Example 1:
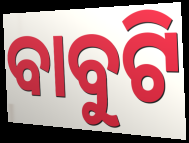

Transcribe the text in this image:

ବାବୁଟି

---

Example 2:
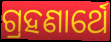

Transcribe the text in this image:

ଗ୍ରହଣାର୍ଥେ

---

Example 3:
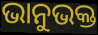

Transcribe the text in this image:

ଭାନୁଭକ୍ତ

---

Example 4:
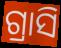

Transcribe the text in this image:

ଗ୍ରାସି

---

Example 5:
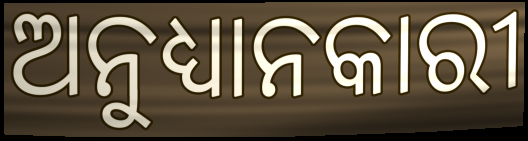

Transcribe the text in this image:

ଅନୁଧ୍ୟାନକାରୀ